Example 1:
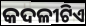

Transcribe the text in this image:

କଦଳୀଟିଏ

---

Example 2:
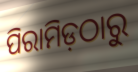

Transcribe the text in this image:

ପିରାମିଡ଼ଠାରୁ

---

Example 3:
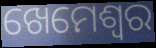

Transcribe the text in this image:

ଖେମେଶ୍ଵର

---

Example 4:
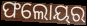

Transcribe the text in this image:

ଫଲୋୟର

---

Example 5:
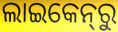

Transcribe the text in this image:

ଲାଇକେନ୍‌ରୁ